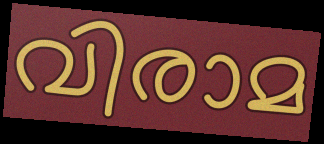
വിരാമ